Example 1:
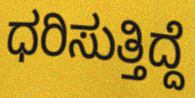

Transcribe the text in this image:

ಧರಿಸುತ್ತಿದ್ದೆ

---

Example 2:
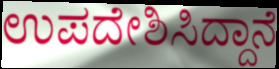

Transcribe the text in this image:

ಉಪದೇಶಿಸಿದ್ದಾನೆ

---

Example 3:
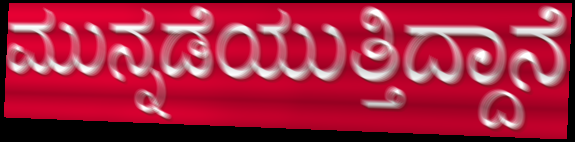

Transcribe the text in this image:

ಮುನ್ನಡೆಯುತ್ತಿದ್ದಾನೆ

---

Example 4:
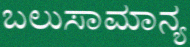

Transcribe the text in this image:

ಬಲುಸಾಮಾನ್ಯ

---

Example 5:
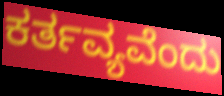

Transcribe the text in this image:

ಕರ್ತವ್ಯವೆಂದು